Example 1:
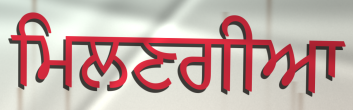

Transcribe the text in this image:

ਮਿਲਣਗੀਆ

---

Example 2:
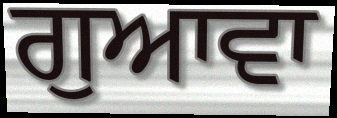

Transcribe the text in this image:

ਗੁਆਵਾ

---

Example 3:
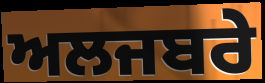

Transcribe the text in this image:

ਅਲਜਬਰੇ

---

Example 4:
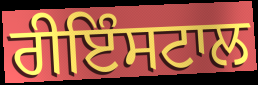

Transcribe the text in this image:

ਰੀਇੰਸਟਾਲ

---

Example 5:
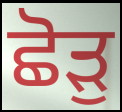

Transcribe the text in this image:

ਛੋੜੁ